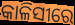
କାଳିସୀରେ